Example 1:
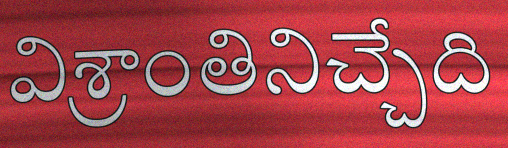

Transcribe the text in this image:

విశ్రాంతినిచ్చేది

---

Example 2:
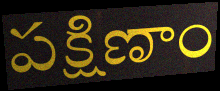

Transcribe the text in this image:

పక్షిణాం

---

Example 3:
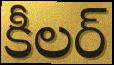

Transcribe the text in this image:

కీలర్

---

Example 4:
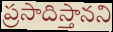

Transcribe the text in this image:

ప్రసాదిస్తానని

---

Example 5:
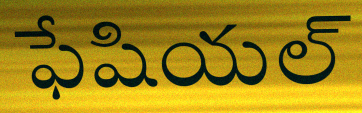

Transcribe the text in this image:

ఫేషియల్